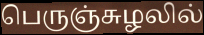
பெருஞ்சுழலில்